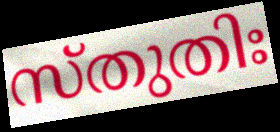
സ്തുതിഃ